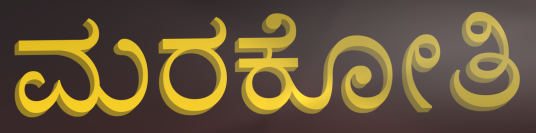
ಮರಕೋತಿ